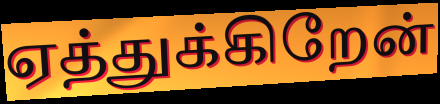
ஏத்துக்கிறேன்